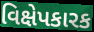
વિક્ષેપકારક